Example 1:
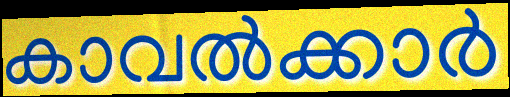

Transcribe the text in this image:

കാവൽക്കാർ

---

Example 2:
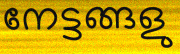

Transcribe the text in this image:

നേട്ടങ്ങളു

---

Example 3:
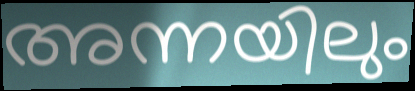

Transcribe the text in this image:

അന്നയിലും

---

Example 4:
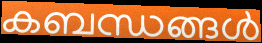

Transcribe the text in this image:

കബന്ധങ്ങൾ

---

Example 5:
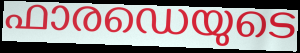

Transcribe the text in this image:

ഫാരഡെയുടെ